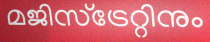
മജിസ്ട്രേറ്റിനും